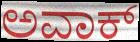
ಅವಾಕ್